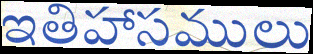
ఇతిహాసములు